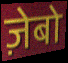
ज़ेबो